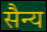
सैन्‍य